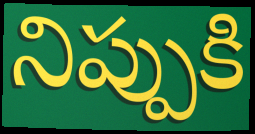
నిప్పుకి